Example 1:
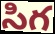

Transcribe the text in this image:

సిగ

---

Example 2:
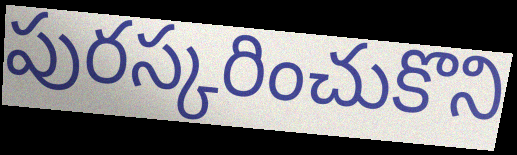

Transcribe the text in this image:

పురస్కరించుకొని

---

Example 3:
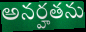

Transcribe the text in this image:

అనర్హతను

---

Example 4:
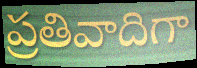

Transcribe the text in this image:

ప్రతివాదిగా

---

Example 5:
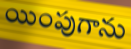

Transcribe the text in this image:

యింపుగాను